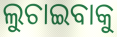
ଲୁଚାଇବାକୁ